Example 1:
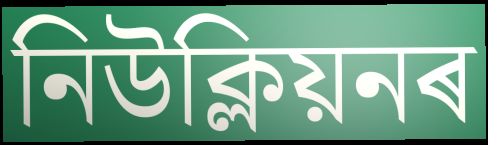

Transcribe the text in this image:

নিউক্লিয়নৰ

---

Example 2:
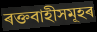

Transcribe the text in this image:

ৰক্তবাহীসমূহৰ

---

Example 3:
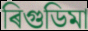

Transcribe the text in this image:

ৰিগুডিমা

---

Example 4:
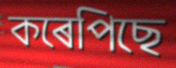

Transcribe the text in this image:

কৰেপিছে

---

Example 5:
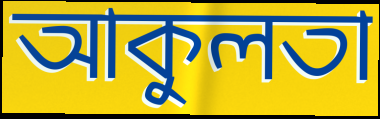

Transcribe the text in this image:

আকুলতা